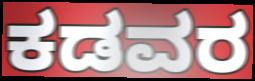
ಕಡವರ